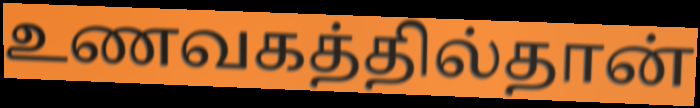
உணவகத்தில்தான்